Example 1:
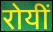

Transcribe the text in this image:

रोयीं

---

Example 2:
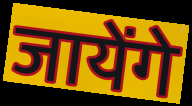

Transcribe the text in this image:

जायेंगे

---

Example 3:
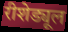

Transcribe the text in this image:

रीशेड्यूल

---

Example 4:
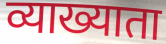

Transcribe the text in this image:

व्‍याख्‍याता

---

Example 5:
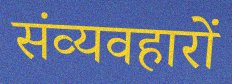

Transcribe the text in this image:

संव्‍यवहारों